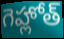
గెహ్లోత్